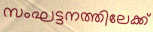
സംഘട്ടനത്തിലേക്ക്